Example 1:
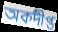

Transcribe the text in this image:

অর্কদীপ্ত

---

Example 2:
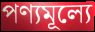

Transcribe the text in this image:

পণ্যমূল্যে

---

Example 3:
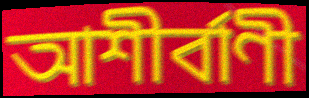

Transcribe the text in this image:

আশীর্বাণী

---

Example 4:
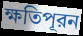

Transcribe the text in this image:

ক্ষতিপূরন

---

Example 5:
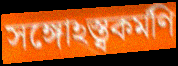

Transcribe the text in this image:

সঙ্গোঽস্ত্বকর্মণি